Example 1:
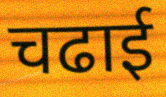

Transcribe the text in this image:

चढाई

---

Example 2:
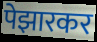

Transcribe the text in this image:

पेझारकर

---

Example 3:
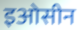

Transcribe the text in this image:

इओसीन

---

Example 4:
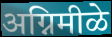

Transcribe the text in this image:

अग्निमीळे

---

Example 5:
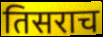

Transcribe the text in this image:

तिसराच